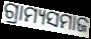
ଗ୍ରାମ୍ୟସମାଜ